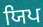
ਯਿਪ